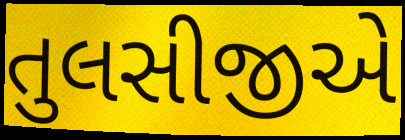
તુલસીજીએ